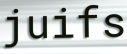
juifs